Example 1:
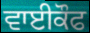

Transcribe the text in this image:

ਵਾਈਕੌਫ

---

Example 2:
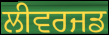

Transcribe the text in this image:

ਲੀਵਰਜਡ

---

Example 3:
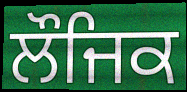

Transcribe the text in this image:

ਲੌਜਿਕ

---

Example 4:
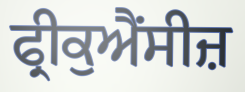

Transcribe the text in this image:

ਫ੍ਰੀਕੁਐਂਸੀਜ਼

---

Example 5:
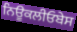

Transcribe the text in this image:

ਨਿਊਕਲੀਓਬੇਸ